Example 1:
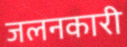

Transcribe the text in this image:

जलनकारी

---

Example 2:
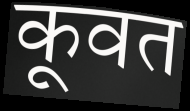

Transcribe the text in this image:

कूवत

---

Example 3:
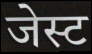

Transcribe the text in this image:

जेस्‍ट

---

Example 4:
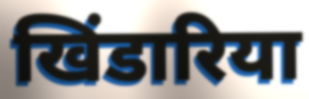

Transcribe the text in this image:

खिंडारिया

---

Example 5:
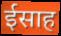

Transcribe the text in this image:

ईसाह